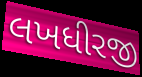
લખધીરજી